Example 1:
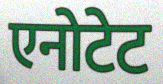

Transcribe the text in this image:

एनोटेट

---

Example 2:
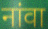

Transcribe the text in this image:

नांवा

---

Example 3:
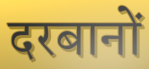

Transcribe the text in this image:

दरबानों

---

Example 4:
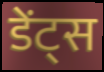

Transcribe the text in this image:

डेंट्स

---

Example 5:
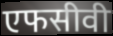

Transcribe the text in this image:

एफसीवी